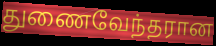
துணைவேந்தரான